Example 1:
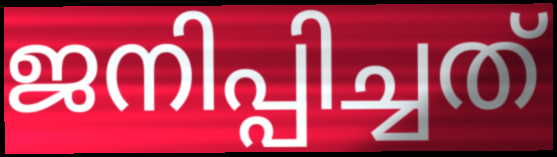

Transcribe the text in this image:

ജനിപ്പിച്ചത്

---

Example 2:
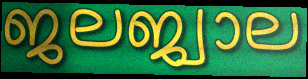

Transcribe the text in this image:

ജലജ്വാല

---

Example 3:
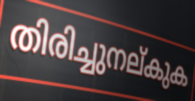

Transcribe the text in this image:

തിരിച്ചുനല്കുക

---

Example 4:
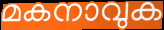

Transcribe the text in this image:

മകനാവുക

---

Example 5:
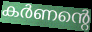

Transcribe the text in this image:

കർണന്റെ